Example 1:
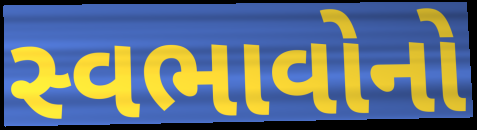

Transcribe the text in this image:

સ્વભાવોનો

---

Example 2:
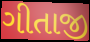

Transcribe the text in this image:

ગીતાજી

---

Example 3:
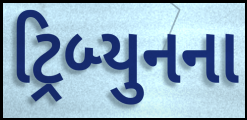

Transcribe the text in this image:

ટ્રિબ્યુનના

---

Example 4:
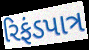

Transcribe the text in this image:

રિફંડપાત્ર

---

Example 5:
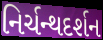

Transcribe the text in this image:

નિર્ચન્થદર્શન